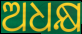
ଅଧକ୍ଷ